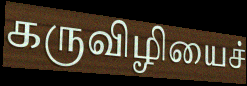
கருவிழியைச்